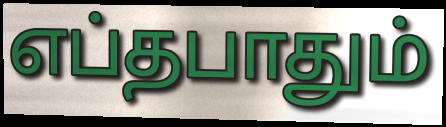
எப்தபாதும்